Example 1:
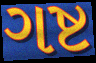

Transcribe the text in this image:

ગષ્ટ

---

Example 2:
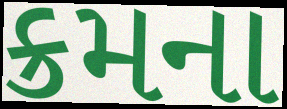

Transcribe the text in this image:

ક્રમના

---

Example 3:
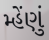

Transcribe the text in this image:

મ્હેંણું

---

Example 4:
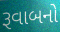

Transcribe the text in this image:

રૂવાબનો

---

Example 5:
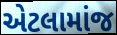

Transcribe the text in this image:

એટલામાંજ